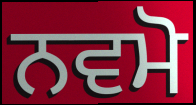
ਨਵਮੋ